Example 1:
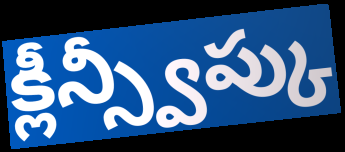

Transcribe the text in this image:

క్లీన్స్వీప్కు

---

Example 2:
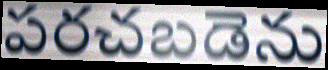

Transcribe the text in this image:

పరచబడెను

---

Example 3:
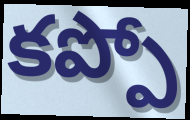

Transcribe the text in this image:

కప్పో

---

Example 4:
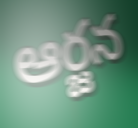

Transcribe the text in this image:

ఆర్జన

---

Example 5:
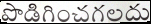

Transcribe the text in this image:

పొడిగించగలదు